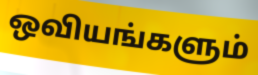
ஒவியங்களும்